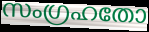
സംഗ്രഹതോ